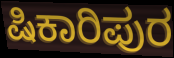
ಷಿಕಾರಿಪುರ